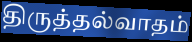
திருத்தல்வாதம்